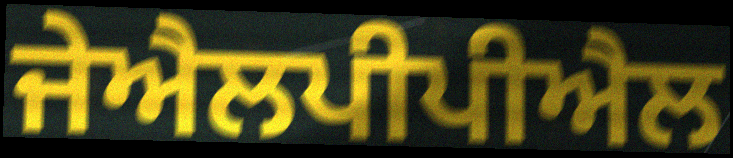
ਜੇਐਲਪੀਪੀਐਲ